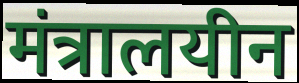
मंत्रालयीन